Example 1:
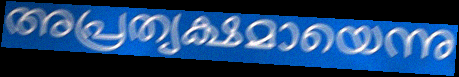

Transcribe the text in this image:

അപ്രത്യക്ഷമായെന്നു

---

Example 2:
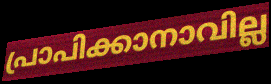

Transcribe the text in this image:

പ്രാപിക്കാനാവില്ല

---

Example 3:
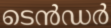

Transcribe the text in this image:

ടെൻഡർ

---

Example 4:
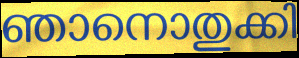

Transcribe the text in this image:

ഞാനൊതുക്കി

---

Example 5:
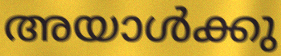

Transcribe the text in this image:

അയാൾക്കു